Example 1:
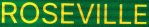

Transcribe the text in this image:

ROSEVILLE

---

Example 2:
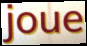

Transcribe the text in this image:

joue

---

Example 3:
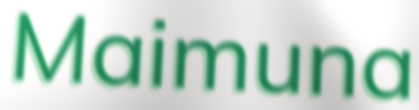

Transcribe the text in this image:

Maimuna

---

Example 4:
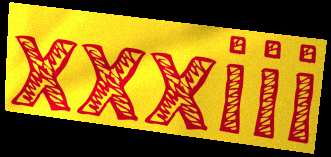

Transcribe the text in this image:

xxxiii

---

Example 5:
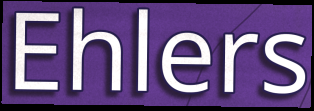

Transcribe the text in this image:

Ehlers